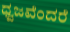
ಧ್ವಜವೆಂದರೆ